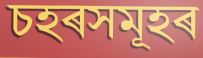
চহৰসমূহৰ